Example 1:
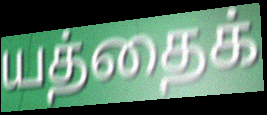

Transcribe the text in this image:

யத்தைக்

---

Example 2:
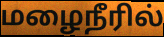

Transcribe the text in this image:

மழைநீரில்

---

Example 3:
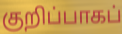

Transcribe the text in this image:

குறிப்பாகப்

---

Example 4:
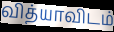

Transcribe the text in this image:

வித்யாவிடம்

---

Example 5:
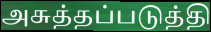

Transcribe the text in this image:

அசுத்தப்படுத்தி